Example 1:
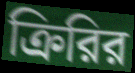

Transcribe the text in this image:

ক্রিরির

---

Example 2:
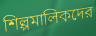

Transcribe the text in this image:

শিল্পমালিকদের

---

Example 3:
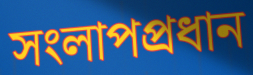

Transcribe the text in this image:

সংলাপপ্রধান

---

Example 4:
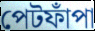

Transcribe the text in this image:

পেটফাঁপা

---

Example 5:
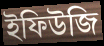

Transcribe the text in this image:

ইফিউজি